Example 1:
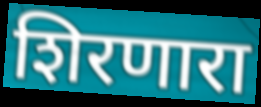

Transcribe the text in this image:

शिरणारा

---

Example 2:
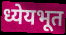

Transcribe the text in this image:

ध्येयभूत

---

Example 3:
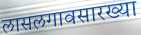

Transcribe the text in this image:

लासलगावसारख्या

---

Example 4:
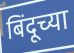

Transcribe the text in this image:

बिंदूच्या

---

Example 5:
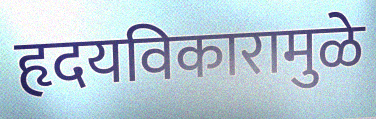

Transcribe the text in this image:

हृदयविकारामुळे